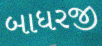
બાધરજી